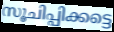
സൂചിപ്പിക്കട്ടെ